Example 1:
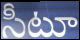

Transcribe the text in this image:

సీటూ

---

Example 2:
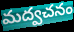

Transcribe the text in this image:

మద్వచనం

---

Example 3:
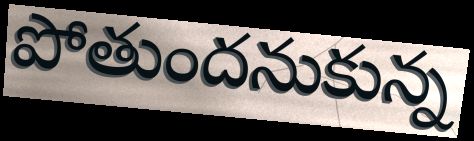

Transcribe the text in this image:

పోతుందనుకున్న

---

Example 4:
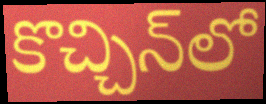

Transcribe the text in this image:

కొచ్చిన్‌లో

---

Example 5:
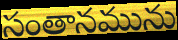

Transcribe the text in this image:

సంతానమును